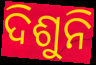
ଦିଶୁନି